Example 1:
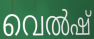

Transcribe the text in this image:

വെൽഷ്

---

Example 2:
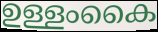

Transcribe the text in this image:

ഉള്ളംകൈ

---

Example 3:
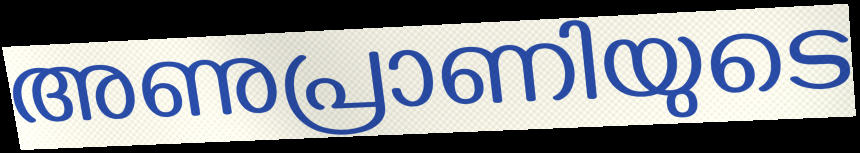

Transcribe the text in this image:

അണുപ്രാണിയുടെ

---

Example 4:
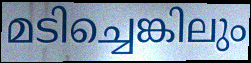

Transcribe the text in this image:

മടിച്ചെങ്കിലും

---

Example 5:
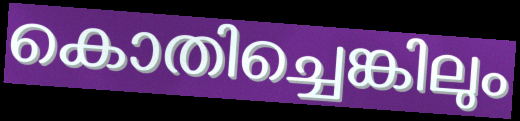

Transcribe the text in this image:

കൊതിച്ചെങ്കിലും